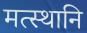
मत्स्थानि